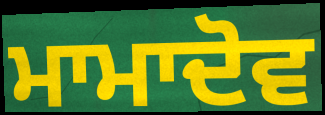
ਮਾਮਾਦੋਵ